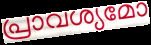
പ്രാവശ്യമോ